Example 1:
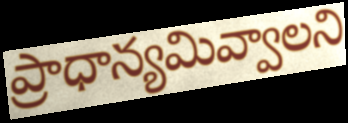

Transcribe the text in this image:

ప్రాధాన్యమివ్వాలని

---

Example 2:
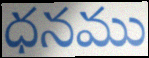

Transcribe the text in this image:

ధనము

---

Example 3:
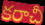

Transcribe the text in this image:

కరాచీ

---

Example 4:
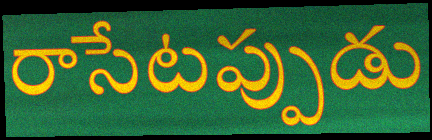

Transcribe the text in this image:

రాసేటప్పుడు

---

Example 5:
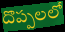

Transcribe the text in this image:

దొప్పలలో